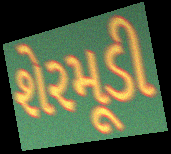
શેરમૂડી